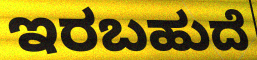
ಇರಬಹುದೆ